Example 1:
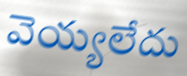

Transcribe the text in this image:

వెయ్యలేదు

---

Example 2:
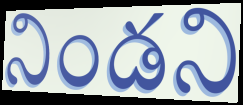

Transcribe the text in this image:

నిండని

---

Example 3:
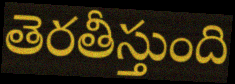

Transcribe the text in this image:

తెరతీస్తుంది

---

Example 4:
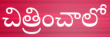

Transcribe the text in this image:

చిత్రించాలో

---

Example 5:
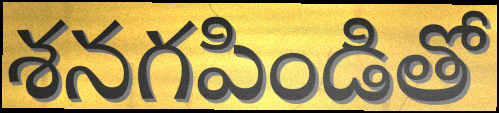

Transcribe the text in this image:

శనగపిండితో